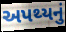
અપથ્યનું